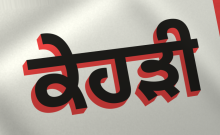
ਕੇਹੜੀ